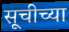
सूचीच्या